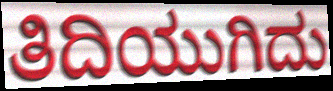
ತಿದಿಯುಗಿದು